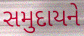
સમુદાયને